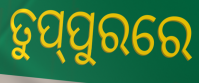
ତୁପ୍‌ପୁରରେ